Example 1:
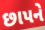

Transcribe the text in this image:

છાપને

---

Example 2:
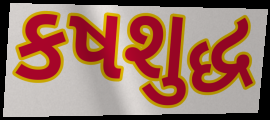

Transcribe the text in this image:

કષશુદ્ધ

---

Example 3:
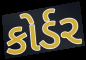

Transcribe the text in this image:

કોર્ડર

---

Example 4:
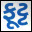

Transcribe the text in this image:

ફૂટ્ટ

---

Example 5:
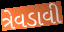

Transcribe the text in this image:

ત્રેવડાવી